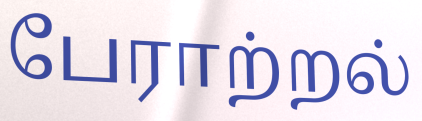
பேராற்றல்